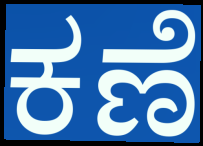
ಕಣೆ